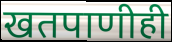
खतपाणीही